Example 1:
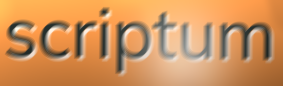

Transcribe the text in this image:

scriptum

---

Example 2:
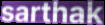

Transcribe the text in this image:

sarthak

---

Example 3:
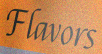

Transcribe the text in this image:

Flavors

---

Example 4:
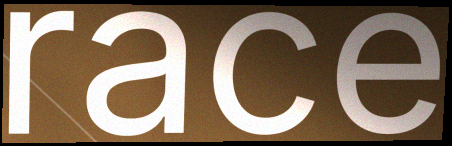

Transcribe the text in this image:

race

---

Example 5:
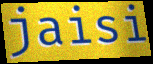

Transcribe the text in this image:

jaisi